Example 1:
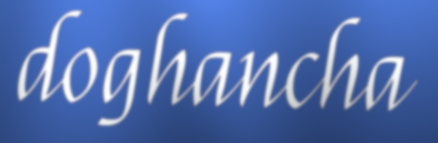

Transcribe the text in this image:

doghancha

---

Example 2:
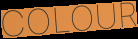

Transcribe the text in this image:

COLOUR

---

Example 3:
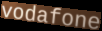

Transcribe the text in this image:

vodafone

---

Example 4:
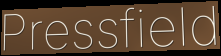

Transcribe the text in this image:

Pressfield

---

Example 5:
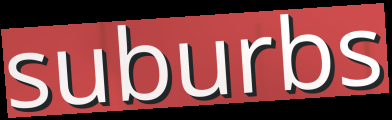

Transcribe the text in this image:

suburbs